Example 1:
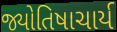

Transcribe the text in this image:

જ્યોતિષાચાર્ય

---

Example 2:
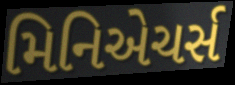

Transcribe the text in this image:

મિનિએચર્સ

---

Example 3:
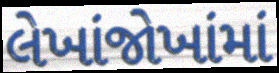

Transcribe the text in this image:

લેખાંજોખાંમાં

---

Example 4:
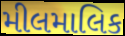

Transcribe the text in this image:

મીલમાલિક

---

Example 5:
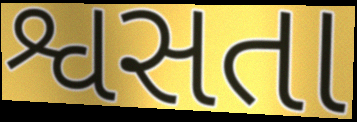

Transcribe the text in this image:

શ્વસતા